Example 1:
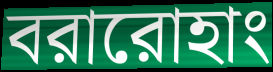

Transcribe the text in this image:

বরারোহাং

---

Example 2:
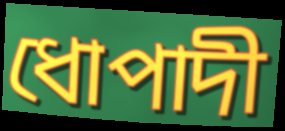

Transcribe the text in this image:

ধোপাদী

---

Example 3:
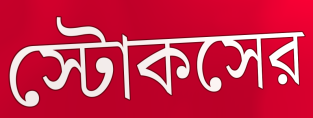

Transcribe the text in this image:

স্টোকসের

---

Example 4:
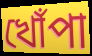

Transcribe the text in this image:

খোঁপা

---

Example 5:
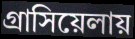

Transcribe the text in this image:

গ্রাসিয়েলায়